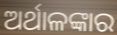
ଅର୍ଥାଳଙ୍କାର